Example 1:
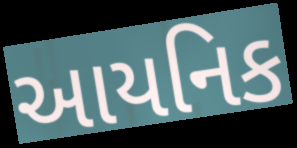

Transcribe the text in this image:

આયનિક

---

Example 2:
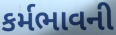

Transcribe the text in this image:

કર્મભાવની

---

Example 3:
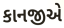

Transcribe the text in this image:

કાનજીએ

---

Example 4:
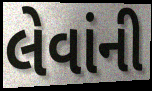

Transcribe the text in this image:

લેવાંની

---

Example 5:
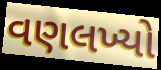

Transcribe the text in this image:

વણલખ્યો